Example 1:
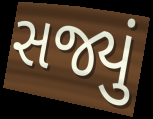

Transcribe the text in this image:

સજ્યું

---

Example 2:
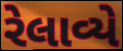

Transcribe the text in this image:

રેલાવ્યે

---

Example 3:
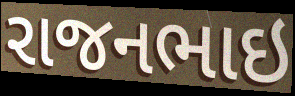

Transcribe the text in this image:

રાજનભાઇ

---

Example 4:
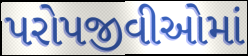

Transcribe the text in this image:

પરોપજીવીઓમાં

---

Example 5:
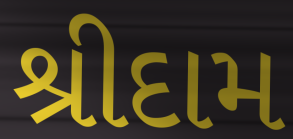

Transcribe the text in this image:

શ્રીદામ